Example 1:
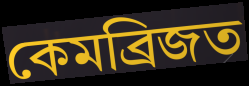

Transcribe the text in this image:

কেমব্ৰিজত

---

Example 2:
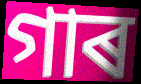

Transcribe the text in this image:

গাৰ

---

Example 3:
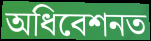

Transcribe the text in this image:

অধিবেশনত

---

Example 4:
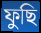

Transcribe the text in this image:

ফুছি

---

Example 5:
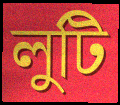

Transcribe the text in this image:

লুটি